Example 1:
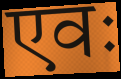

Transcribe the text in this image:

एवः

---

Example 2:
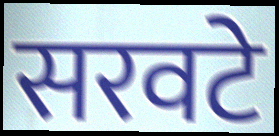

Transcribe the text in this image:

सरवटे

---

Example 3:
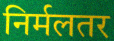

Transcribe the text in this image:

निर्मलतर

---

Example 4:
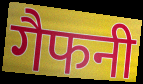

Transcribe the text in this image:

गैफनी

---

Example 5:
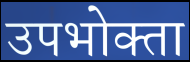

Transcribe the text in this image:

उपभोक्‍ता